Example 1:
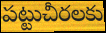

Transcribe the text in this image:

పట్టుచీరలకు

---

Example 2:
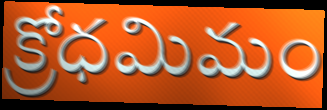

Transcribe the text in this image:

క్రోధమిమం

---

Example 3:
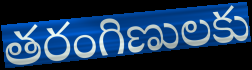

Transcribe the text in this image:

తరంగిణులకు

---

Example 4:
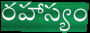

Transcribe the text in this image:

రహాస్యం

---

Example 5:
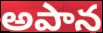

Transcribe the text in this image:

అపాన